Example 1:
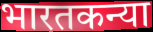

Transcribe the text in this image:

भारतकन्या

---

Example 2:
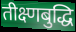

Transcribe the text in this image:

तीक्ष्णबुद्धि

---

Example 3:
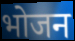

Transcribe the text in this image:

भोजन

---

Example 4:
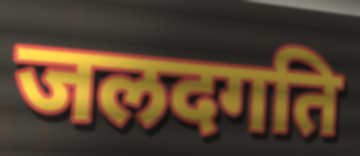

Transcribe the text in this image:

जलदगति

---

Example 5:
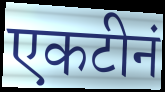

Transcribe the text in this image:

एकटीनं